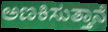
ಅಣಕಿಸುತ್ತಾನೆ